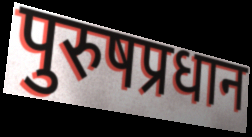
पुरुषप्रधान